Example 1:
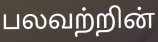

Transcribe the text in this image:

பலவற்றின்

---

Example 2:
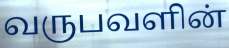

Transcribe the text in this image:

வருபவளின்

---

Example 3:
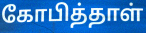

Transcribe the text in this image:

கோபித்தாள்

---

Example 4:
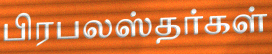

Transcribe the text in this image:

பிரபலஸ்தர்கள்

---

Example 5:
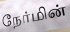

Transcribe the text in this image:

நேர்மின்